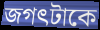
জগৎটাকে